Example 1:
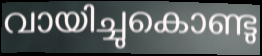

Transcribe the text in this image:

വായിച്ചുകൊണ്ടു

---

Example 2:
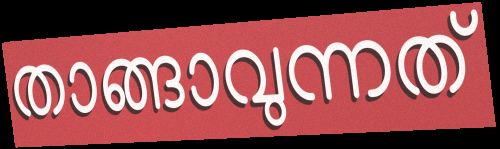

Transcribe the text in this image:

താങ്ങാവുന്നത്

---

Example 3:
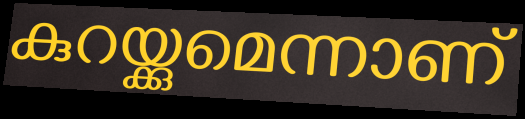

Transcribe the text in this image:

കുറയ്ക്കുമെന്നാണ്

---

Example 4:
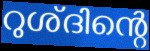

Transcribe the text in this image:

റുശ്ദിന്റെ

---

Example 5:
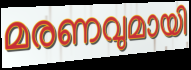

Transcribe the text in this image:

മരണവുമായി